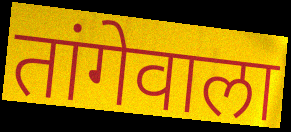
तांगेवाला